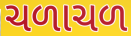
ચળાચળ